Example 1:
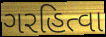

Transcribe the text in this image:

ગરહિત્વા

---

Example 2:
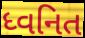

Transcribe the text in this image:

ધ્વનિત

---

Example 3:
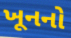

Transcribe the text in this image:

ખૂનનો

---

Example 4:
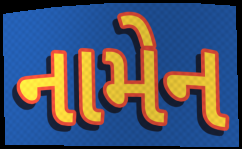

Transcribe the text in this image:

નામેન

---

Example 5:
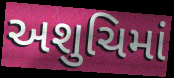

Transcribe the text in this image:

અશુચિમાં